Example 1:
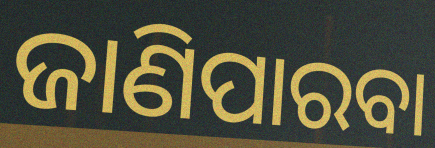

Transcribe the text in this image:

ଜାଣିପାରବା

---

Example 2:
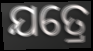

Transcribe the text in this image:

ଯତ୍ରେ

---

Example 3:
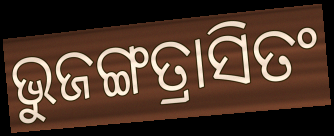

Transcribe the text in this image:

ଭୁଜଙ୍ଗତ୍ରାସିତଂ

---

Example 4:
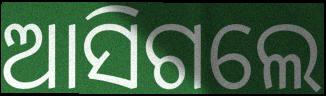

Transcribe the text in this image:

ଆସିଗଲେ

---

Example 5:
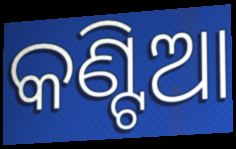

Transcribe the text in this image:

କଣ୍ଟିଆ